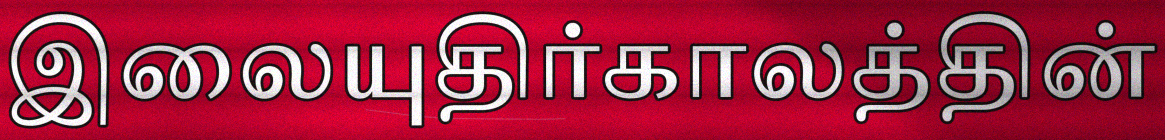
இலையுதிர்காலத்தின்